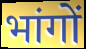
भांगों